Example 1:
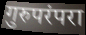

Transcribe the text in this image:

गुरुपरंपरा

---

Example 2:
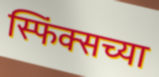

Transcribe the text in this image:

स्फिंक्सच्या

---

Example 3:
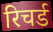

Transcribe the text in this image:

रिचर्ड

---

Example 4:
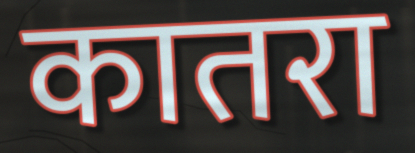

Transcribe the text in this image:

कातरा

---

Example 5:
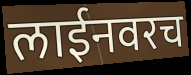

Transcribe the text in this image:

लाईनवरच